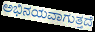
ಅಭಿನಯವಾಗುತ್ತದೆ